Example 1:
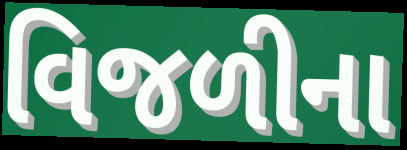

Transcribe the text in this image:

વિજળીના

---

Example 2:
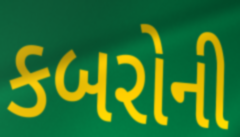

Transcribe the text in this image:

કબરોની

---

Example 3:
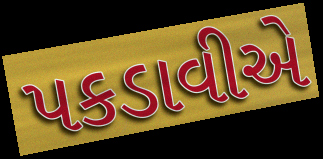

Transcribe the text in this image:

પકડાવીએ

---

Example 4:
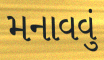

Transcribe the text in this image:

મનાવવું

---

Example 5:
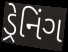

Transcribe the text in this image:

ડ્રેનિંગ